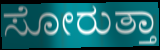
ಸೋರುತ್ತಾ